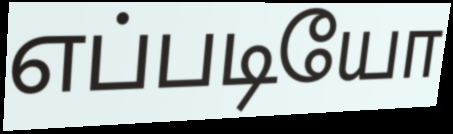
எப்படியோ